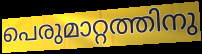
പെരുമാറ്റത്തിനു